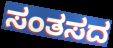
ಸಂತಸದ